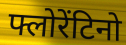
फ्लोरेंटिनो